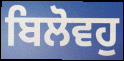
ਬਿਲੋਵਹੁ